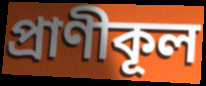
প্রাণীকূল